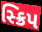
સ્ક્રિપ